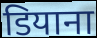
डियाना